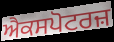
ਐਕਸਪੋਟਰਜ਼